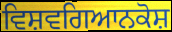
ਵਿਸ਼ਵਗਿਆਨਕੋਸ਼